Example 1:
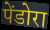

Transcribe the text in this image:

पेंडोरा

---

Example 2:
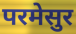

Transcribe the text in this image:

परमेसुर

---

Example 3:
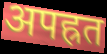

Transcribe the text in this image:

अपह्रत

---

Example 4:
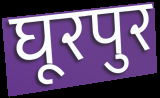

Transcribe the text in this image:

घूरपुर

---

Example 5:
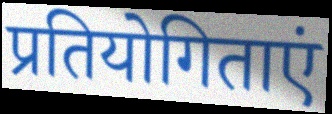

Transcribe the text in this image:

प्रतियोगिताएं